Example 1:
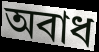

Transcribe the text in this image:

অবাধ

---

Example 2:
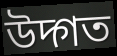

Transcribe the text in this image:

উদ্গত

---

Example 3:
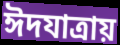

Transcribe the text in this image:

ঈদযাত্রায়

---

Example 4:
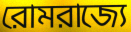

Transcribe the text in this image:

রোমরাজ্যে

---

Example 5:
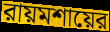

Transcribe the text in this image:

রায়মশায়ের